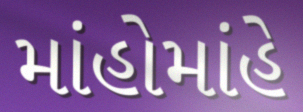
માંહોમાંહે